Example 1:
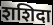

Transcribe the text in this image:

शशिदा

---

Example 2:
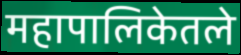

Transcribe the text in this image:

महापालिकेतले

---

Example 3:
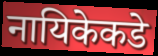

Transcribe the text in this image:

नायिकेकडे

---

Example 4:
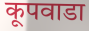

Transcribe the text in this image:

कूपवाडा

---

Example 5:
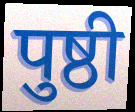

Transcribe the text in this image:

पुष्ठी